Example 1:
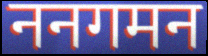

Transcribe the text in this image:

ननगमन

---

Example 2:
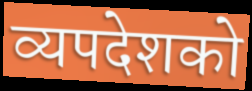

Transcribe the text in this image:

व्यपदेशको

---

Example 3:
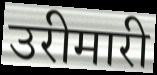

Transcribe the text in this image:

उरीमारी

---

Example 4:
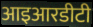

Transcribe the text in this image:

आइआरडीटी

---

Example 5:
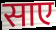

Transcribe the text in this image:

साए